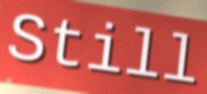
Still